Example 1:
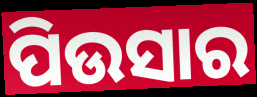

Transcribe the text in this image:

ପିଉସାର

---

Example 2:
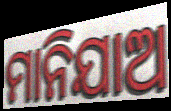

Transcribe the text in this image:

ମାନିଯାଅ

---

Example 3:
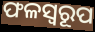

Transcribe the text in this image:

ଫଳସ୍ୱରୂପ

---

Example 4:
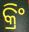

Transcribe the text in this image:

କ୍ରିଂ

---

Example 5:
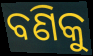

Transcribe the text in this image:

ବଣିକୁ